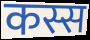
कस्स